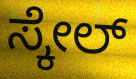
ಸ್ಕೇಲ್